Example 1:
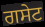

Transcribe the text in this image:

ਗਸੇਟ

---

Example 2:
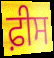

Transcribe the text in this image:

ਫ਼ੀਸ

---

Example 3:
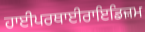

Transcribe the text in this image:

ਹਾਈਪਰਥਾਈਰਾਇਡਿਜ਼ਮ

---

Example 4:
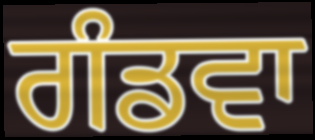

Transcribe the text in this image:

ਗੰਡਵਾ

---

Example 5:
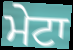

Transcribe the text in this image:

ਮੇਟਾ